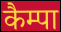
कैम्पा